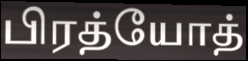
பிரத்யோத்